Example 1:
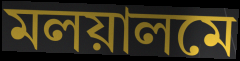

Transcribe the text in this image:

মলয়ালমে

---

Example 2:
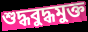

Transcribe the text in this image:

শুদ্ধবুদ্ধমুক্ত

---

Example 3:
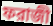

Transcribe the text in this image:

ফরাজী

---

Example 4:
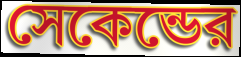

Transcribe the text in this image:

সেকেন্ডের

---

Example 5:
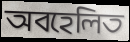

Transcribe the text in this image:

অবহেলিত